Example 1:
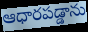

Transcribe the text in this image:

ఆధారపడ్డాను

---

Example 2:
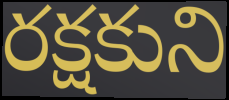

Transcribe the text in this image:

రక్షకుని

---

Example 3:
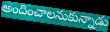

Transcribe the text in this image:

అందించాలనుకున్నాడు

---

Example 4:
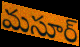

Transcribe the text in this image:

మసూర్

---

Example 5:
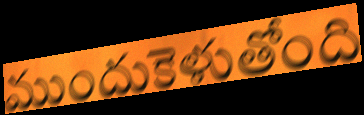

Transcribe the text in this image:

ముందుకెళుతోంది